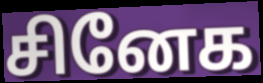
சினேக